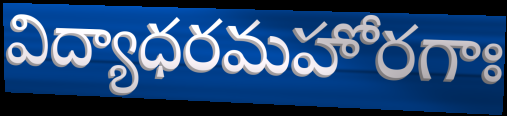
విద్యాధరమహోరగాః